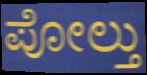
ಪೋಲ್ತು